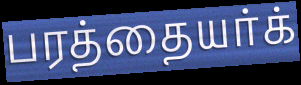
பரத்தையர்க்